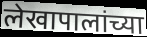
लेखापालांच्या